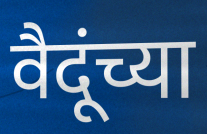
वैदूंच्या